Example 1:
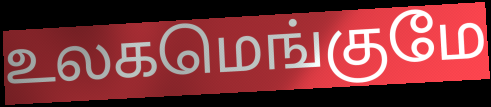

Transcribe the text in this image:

உலகமெங்குமே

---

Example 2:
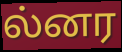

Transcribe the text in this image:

ல்னர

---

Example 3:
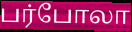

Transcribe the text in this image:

பர்போலா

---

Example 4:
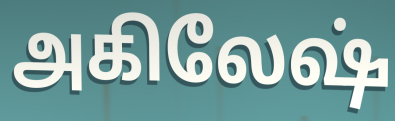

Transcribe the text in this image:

அகிலேஷ்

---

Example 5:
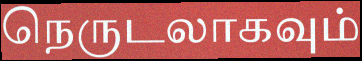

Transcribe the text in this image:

நெருடலாகவும்